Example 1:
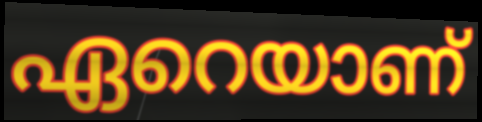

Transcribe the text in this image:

ഏറെയാണ്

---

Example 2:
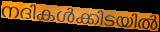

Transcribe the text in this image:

നദികൾക്കിടയിൽ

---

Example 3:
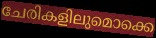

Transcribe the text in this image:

ചേരികളിലുമൊക്കെ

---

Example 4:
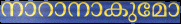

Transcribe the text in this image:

നാറാനാകുമോ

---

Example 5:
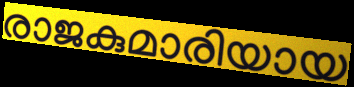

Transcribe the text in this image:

രാജകുമാരിയായ